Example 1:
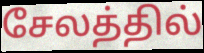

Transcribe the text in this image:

சேலத்தில்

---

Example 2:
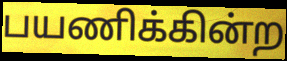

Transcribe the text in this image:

பயணிக்கின்ற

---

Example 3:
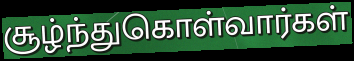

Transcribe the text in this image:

சூழ்ந்துகொள்வார்கள்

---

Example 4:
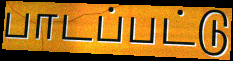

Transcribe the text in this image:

பாடப்பட்டு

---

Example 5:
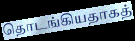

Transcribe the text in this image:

தொடங்கியதாகத்